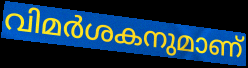
വിമർശകനുമാണ്